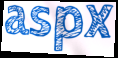
aspx